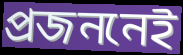
প্রজননেই